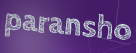
paransho